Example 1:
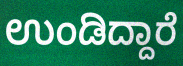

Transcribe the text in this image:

ಉಂಡಿದ್ದಾರೆ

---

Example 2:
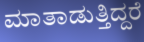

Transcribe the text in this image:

ಮಾತಾಡುತ್ತಿದ್ದರೆ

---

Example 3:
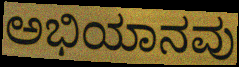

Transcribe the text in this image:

ಅಭಿಯಾನವು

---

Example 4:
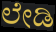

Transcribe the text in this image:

ಲೇಡಿ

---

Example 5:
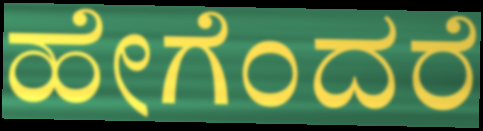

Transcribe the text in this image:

ಹೇಗೆಂದರೆ